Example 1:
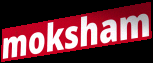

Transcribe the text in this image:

moksham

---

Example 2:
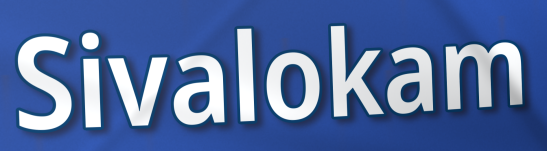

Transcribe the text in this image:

Sivalokam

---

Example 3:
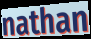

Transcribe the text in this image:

nathan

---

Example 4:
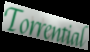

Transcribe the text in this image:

Torrential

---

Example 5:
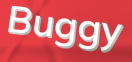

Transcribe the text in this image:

Buggy